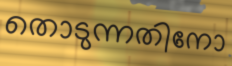
തൊടുന്നതിനോ